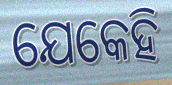
ଯେକେହି